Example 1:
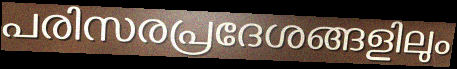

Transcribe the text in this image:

പരിസരപ്രദേശങ്ങളിലും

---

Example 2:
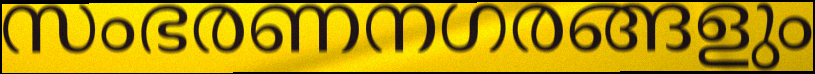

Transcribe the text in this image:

സംഭരണനഗരങ്ങളും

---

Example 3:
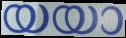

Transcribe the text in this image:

യയാ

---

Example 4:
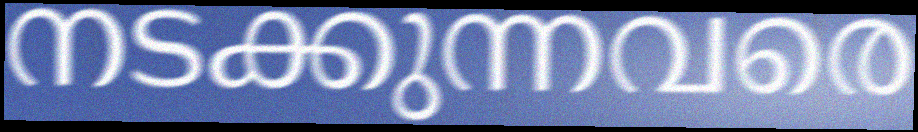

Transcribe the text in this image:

നടക്കുന്നവരെ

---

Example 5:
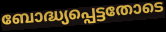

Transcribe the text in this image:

ബോദ്ധ്യപ്പെട്ടതോടെ